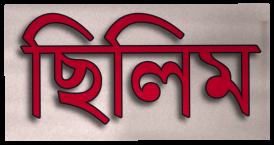
ছিলিম